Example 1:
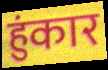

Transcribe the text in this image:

हुंकार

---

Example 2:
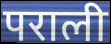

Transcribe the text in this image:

पराली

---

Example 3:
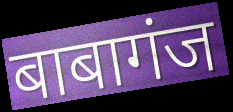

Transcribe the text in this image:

बाबागंज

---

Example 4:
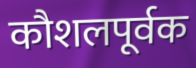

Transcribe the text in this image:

कौशलपूर्वक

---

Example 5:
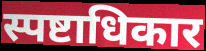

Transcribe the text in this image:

स्पष्टाधिकार